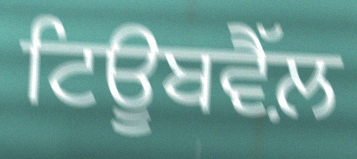
ਟਿਊਬਵੈੱਲ਼